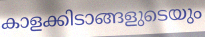
കാളക്കിടാങ്ങളുടെയും